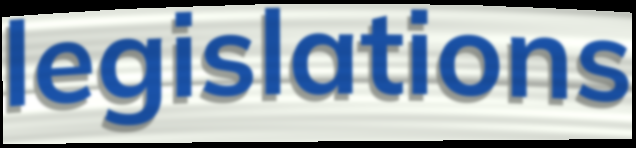
legislations